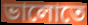
ভালোতে